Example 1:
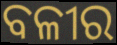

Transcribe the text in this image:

ବଳୀର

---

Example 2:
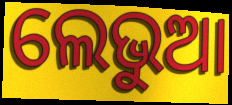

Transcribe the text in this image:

ଲେଭୁଆ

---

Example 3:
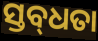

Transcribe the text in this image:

ସ୍ତବ୍‌ଧତା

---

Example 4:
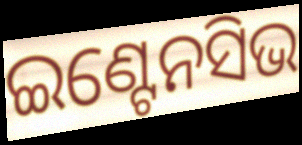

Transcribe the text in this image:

ଇଣ୍ଟେନସିଭ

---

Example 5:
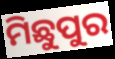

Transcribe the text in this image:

ମିଛୁପୁର